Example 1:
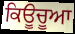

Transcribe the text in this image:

ਕਿਊਚੂਆ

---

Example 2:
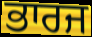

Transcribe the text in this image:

ਭਾਰਜ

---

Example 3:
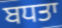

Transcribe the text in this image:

ਬਧਤਾ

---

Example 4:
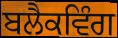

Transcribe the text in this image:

ਬਲੈਕਵਿੰਗ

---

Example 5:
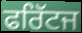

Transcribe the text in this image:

ਫਰਿੱਟਜ